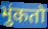
भुंकतो